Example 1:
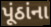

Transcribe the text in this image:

પૂંઠાંના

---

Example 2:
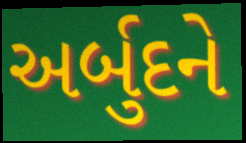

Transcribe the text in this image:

અર્બુદને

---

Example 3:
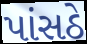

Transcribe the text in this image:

પાંસઠે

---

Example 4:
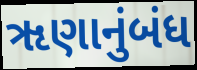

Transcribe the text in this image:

ૠણાનુંબંધ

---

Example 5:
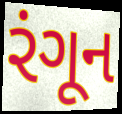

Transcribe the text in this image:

રંગૂન